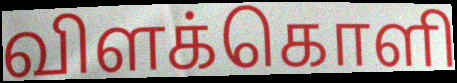
விளக்கொளி